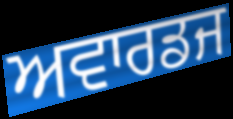
ਅਵਾਰਡਜ